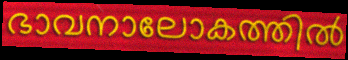
ഭാവനാലോകത്തിൽ